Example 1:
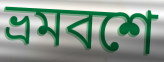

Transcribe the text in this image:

ভ্রমবশে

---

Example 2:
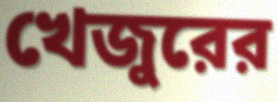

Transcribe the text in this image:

খেজুরের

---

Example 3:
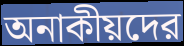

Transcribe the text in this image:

অনাকীয়দের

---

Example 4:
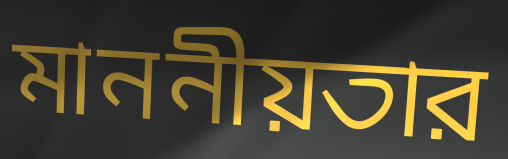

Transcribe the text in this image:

মাননীয়তার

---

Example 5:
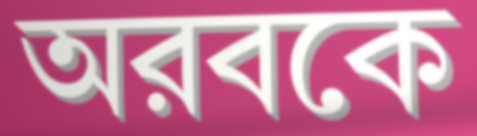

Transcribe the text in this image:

অরবকে